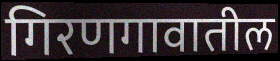
गिरणगावातील